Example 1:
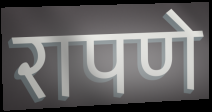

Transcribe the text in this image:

रापणे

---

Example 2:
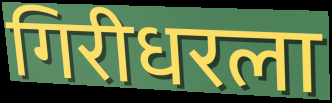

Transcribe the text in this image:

गिरीधरला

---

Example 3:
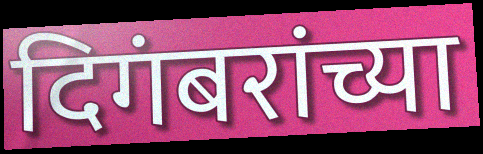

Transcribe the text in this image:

दिगंबरांच्या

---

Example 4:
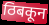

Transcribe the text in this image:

ठिबकून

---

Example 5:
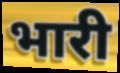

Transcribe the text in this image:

भारी